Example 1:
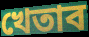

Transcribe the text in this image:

খেতাব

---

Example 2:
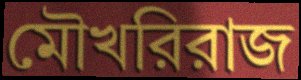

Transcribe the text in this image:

মৌখরিরাজ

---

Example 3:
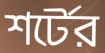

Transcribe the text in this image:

শর্টের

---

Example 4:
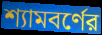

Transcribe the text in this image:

শ্যামবর্ণের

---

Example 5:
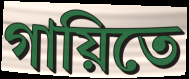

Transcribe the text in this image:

গায়িতে